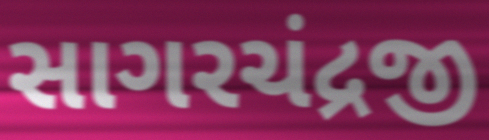
સાગરચંદ્રજી